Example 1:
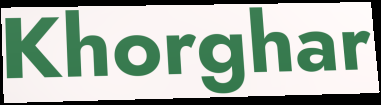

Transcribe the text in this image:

Khorghar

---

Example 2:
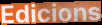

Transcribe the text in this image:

Edicions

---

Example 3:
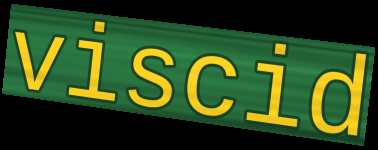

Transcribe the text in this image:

viscid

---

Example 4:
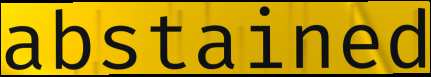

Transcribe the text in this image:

abstained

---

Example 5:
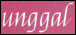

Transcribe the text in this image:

unggal